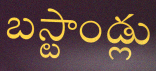
బస్టాండ్లు